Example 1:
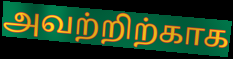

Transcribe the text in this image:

அவற்றிற்காக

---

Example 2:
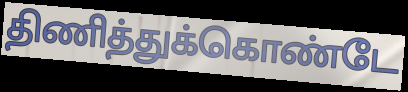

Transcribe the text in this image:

திணித்துக்கொண்டே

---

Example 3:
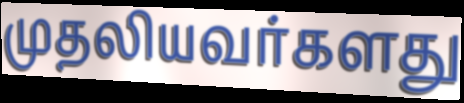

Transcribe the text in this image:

முதலியவர்களது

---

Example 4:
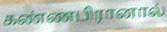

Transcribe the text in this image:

கண்ணபிரானால்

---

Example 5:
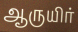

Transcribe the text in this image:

ஆருயிர்